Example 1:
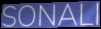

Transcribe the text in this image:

SONALI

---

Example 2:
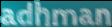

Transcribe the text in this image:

adhman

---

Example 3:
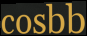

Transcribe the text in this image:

cosbb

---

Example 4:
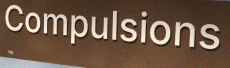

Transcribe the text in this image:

Compulsions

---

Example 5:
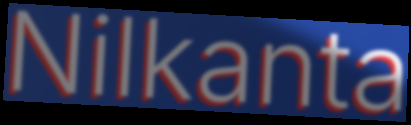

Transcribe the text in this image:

Nilkanta